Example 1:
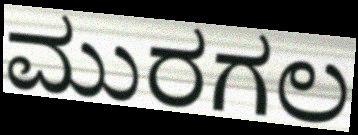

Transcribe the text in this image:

ಮುರಗಲ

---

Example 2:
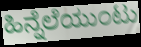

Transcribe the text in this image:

ಹಿನ್ನೆಲೆಯುಂಟು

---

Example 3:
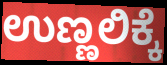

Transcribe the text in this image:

ಉಣ್ಣಲಿಕ್ಕೆ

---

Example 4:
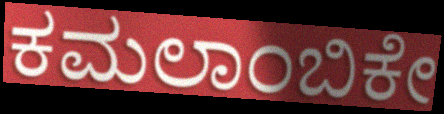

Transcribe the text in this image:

ಕಮಲಾಂಬಿಕೇ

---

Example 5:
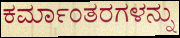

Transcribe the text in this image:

ಕರ್ಮಾಂತರಗಳನ್ನು